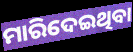
ମାରିଦେଇଥିବା